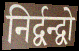
निर्द्वन्द्वो